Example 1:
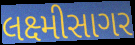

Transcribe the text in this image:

લક્ષ્મીસાગર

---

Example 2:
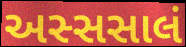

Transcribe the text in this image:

અસ્સસાલં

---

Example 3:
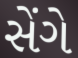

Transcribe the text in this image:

સેંગે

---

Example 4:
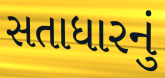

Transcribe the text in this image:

સતાધારનું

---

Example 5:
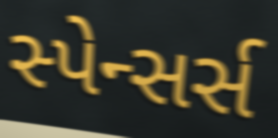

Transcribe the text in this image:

સ્પેન્સર્સ